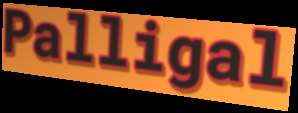
Palligal